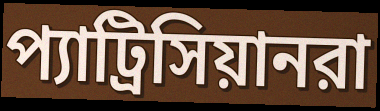
প্যাট্রিসিয়ানরা